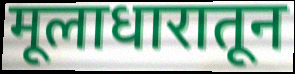
मूलाधारातून